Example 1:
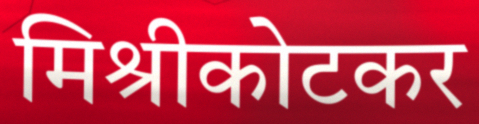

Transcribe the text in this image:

मिश्रीकोटकर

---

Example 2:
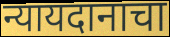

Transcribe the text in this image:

न्यायदानाचा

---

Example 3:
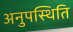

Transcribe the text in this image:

अनुपस्थिति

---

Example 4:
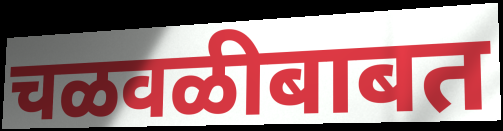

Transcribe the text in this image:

चळवळीबाबत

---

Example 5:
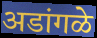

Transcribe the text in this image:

अडांगळे